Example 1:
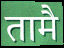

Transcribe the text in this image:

तामै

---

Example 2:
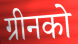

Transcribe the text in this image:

ग्रीनको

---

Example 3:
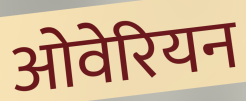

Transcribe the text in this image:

ओवेरियन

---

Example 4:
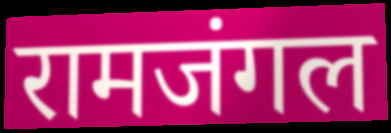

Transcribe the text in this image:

रामजंगल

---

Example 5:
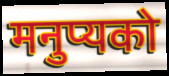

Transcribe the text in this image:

मनुप्यको